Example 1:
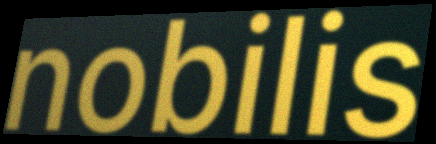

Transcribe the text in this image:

nobilis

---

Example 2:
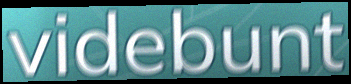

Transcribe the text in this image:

videbunt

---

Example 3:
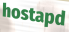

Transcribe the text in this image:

hostapd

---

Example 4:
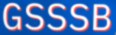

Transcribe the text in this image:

GSSSB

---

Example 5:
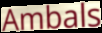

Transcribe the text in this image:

Ambals